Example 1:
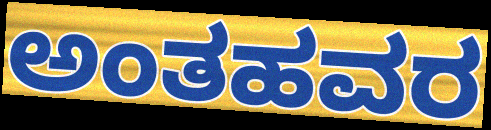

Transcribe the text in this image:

ಅಂತಹವರ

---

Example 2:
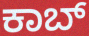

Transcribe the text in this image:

ಕಾಬ್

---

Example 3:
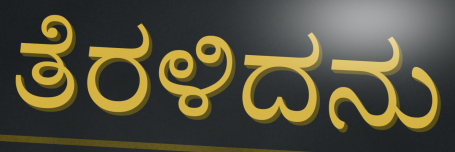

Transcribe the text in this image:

ತೆರಳಿದನು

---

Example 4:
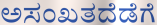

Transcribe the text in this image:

ಅಸಂಖತದೆಡೆಗೆ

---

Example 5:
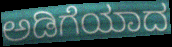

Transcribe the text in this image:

ಅಡಿಗೆಯಾದ